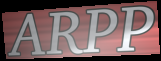
ARPP